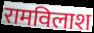
रामविलाश